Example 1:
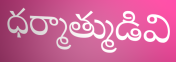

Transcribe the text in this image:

ధర్మాత్ముడివి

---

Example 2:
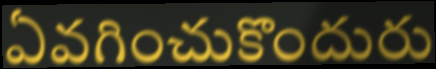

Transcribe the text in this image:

ఏవగించుకొందురు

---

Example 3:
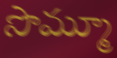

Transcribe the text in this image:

సొమ్మూ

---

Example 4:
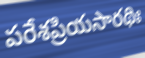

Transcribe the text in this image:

పరేశప్రియసారథిః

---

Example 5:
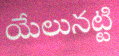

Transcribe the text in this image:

యేలునట్టి